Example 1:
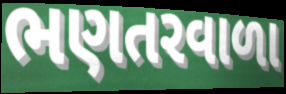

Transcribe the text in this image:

ભણતરવાળા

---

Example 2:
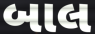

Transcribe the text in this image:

બાલ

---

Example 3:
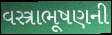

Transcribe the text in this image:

વસ્ત્રાભૂષણની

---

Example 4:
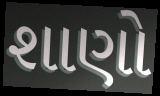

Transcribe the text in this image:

શાણો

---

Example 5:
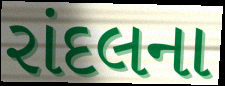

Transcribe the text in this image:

રાંદલના